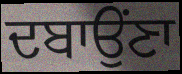
ਦਬਾਉਂਣਾ